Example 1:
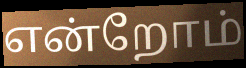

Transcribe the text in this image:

என்றோம்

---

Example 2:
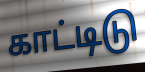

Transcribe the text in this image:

காட்டிடு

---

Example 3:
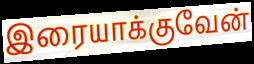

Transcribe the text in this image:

இரையாக்குவேன்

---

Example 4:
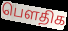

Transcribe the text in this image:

பௌதிக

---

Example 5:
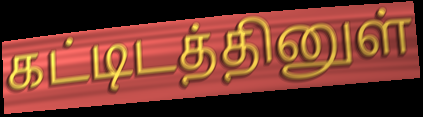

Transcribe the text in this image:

கட்டிடத்தினுள்